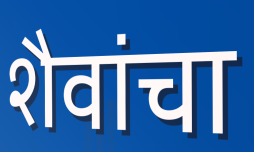
शैवांचा